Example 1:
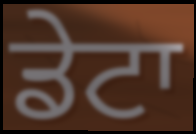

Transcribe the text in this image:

ਡੇਟਾ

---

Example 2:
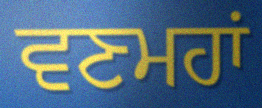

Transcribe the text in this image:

ਵਣਮਹਾਂ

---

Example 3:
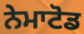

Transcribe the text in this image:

ਨੇਮਾਟੋਡ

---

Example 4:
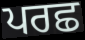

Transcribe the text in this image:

ਪਰਛ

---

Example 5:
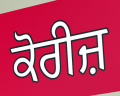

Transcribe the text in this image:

ਕੋਰੀਜ਼